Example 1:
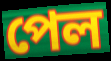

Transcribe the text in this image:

পেল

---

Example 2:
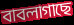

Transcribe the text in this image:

বাবলাগাছে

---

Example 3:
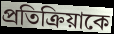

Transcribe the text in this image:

প্রতিক্রিয়াকে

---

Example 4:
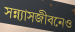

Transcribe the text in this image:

সন্ন্যাসজীবনেও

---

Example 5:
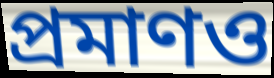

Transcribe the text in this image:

প্রমাণও